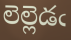
లెల్లెడఁ